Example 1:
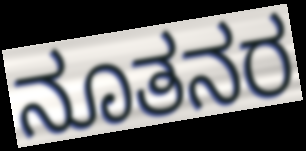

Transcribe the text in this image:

ನೂತನರ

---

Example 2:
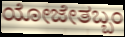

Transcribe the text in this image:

ಯೋಜೇತಬ್ಬಂ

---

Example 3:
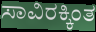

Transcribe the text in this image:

ಸಾವಿರಕ್ಕಿಂತ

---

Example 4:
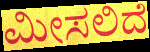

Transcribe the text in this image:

ಮೀಸಲಿದೆ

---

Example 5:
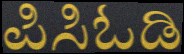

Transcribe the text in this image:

ಪಿಸಿಓಡಿ